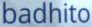
badhito